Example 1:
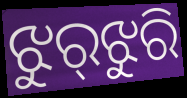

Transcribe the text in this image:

ଝୁର୍‌ଝୁରି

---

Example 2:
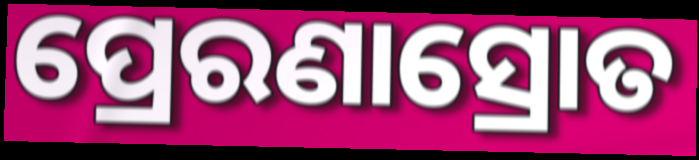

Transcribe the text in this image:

ପ୍ରେରଣାସ୍ରୋତ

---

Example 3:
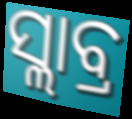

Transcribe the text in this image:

ସ୍ଲାବ୍ର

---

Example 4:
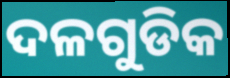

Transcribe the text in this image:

ଦଳଗୁଡିକ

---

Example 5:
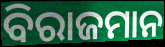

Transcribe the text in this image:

ବିରାଜମାନ